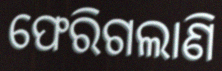
ଫେରିଗଲାଣି